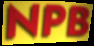
NPB